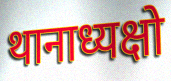
थानाध्यक्षो